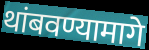
थांबवण्यामागे